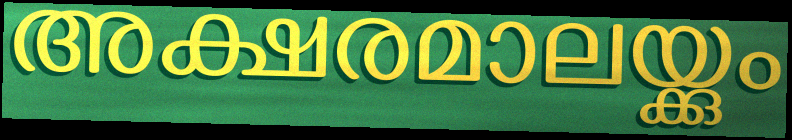
അക്ഷരമാലയ്ക്കും